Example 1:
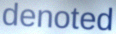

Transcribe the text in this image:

denoted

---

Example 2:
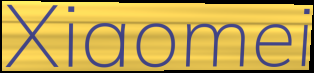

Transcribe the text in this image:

Xiaomei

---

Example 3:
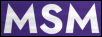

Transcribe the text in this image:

MSM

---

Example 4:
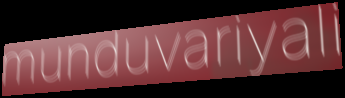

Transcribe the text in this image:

munduvariyali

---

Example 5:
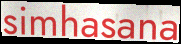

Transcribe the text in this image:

simhasana